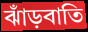
ঝাঁড়বাতি